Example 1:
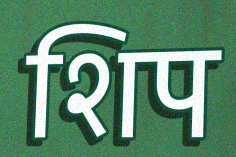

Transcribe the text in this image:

शिप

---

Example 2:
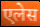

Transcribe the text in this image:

एलेस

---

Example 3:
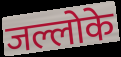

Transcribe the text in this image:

जल्लोके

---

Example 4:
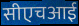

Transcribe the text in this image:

सीएचआई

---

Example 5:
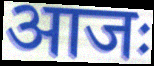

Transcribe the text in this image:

आजः